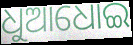
ଧୁଆଧୋଇ